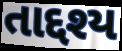
તાદ્દશ્ય